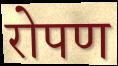
रोपण